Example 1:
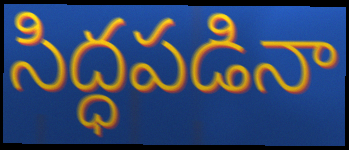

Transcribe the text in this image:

సిద్ధపడినా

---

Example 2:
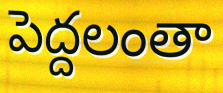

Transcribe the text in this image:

పెద్దలంతా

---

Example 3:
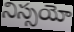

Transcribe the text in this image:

నిస్సయో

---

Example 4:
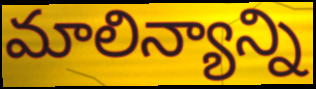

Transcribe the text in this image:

మాలిన్యాన్ని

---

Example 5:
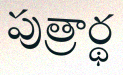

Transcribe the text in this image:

పుత్రార్థ